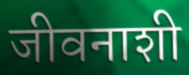
जीवनाशी